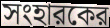
সংহারকের